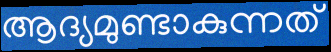
ആദ്യമുണ്ടാകുന്നത്